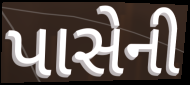
પાસેની